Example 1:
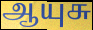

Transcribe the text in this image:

ஆயுசு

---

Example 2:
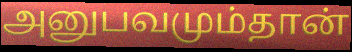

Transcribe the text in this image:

அனுபவமும்தான்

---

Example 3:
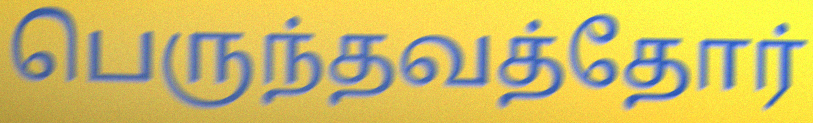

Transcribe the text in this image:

பெருந்தவத்தோர்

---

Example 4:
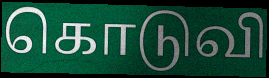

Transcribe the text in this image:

கொடுவி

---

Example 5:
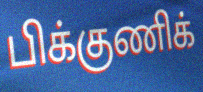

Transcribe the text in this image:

பிக்குணிக்